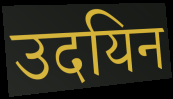
उदयिन